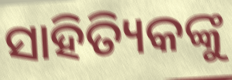
ସାହିତ୍ୟିକଙ୍କୁ